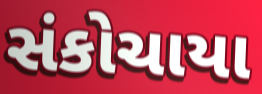
સંકોચાયા